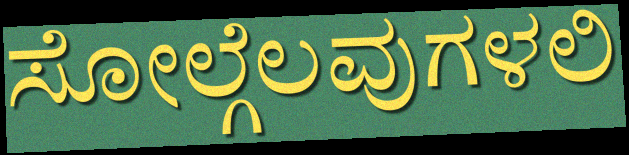
ಸೋಲ್ಗೆಲವುಗಳಲಿ